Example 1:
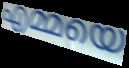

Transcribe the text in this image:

എമ്മയെ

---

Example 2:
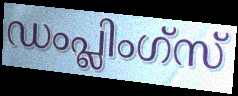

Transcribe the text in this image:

ഡംപ്ലിംഗ്സ്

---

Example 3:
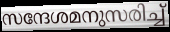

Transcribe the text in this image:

സന്ദേശമനുസരിച്ച്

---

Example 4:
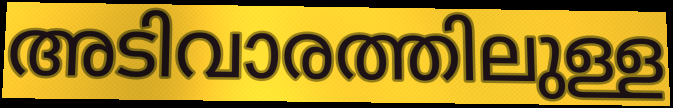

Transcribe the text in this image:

അടിവാരത്തിലുള്ള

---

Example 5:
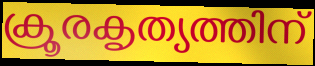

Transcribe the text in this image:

ക്രൂരകൃത്യത്തിന്